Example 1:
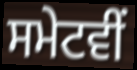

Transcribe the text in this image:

ਸਮੇਟਵੀਂ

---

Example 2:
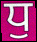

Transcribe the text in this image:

ਧੁ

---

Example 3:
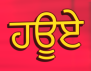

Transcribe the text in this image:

ਹਊਏ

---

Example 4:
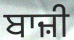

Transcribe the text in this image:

ਬਾਜ਼ੀ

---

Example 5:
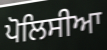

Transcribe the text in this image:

ਪੋਲਿਸੀਆ